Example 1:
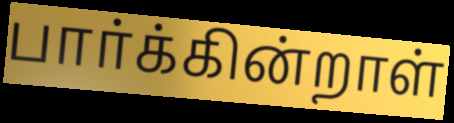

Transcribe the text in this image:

பார்க்கின்றாள்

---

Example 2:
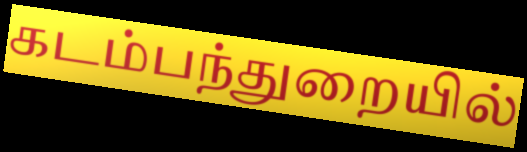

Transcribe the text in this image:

கடம்பந்துறையில்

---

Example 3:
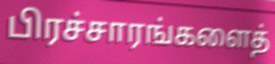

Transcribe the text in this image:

பிரச்சாரங்களைத்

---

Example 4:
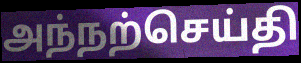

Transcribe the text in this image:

அந்நற்செய்தி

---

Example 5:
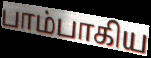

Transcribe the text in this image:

பாம்பாகிய